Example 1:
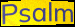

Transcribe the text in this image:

Psalm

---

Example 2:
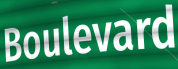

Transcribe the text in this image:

Boulevard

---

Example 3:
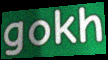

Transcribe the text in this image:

gokh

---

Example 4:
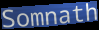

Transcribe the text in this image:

Somnath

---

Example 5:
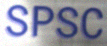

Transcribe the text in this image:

SPSC